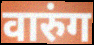
वारुंग